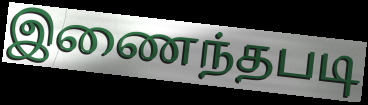
இணைந்தபடி